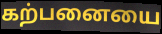
கற்பனையை